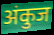
अंकुज